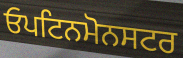
ਓਪਟਿਨਮੋਨਸਟਰ